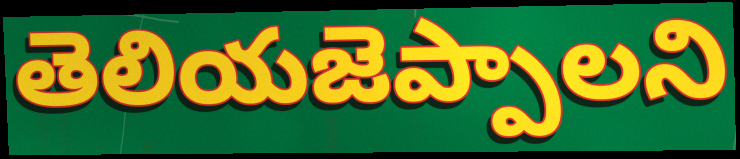
తెలియజెప్పాలని